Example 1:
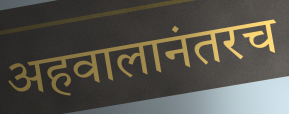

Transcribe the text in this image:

अहवालानंतरच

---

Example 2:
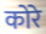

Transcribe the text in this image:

कोरे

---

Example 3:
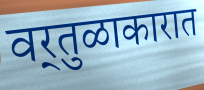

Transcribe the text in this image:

वर्तुळाकारात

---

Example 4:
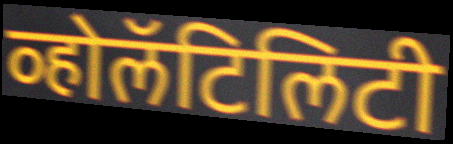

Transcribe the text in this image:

व्होलॅटिलिटी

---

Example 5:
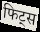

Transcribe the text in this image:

फिट्स